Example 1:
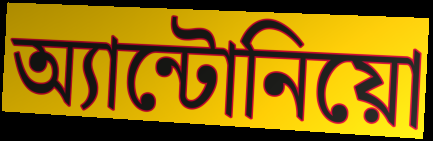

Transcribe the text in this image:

অ্যান্টোনিয়ো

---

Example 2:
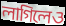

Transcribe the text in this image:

লাগিলেও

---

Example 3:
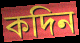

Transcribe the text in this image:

কদিন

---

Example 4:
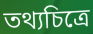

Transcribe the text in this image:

তথ্যচিত্রে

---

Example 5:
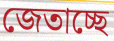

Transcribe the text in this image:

জেতাচ্ছে